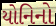
યોનિનો